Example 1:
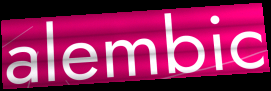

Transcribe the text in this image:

alembic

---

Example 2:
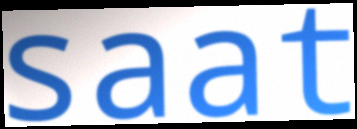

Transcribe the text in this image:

saat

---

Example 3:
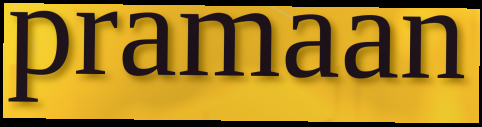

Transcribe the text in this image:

pramaan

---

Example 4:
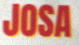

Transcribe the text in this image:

JOSA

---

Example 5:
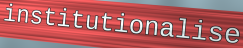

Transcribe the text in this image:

institutionalise